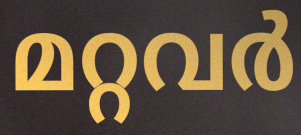
മറ്റവർ